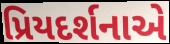
પ્રિયદર્શનાએ